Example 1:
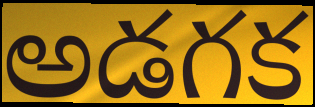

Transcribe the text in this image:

అడగక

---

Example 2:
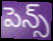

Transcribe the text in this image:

పెన్స్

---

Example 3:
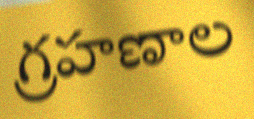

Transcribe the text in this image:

గ్రహణాల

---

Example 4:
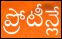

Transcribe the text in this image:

ప్రోటీన్లే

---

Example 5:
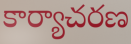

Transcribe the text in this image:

కార్యాచరణ